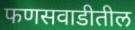
फणसवाडीतील